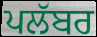
ਪਲੱਬਰ